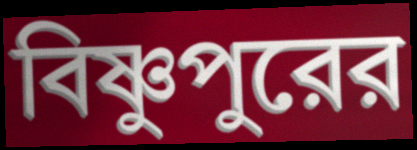
বিষ্ণুপুরের